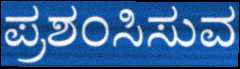
ಪ್ರಶಂಸಿಸುವ